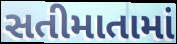
સતીમાતામાં